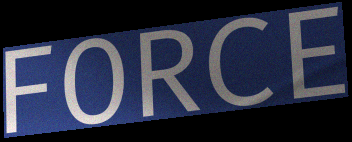
FORCE